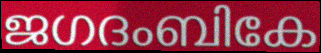
ജഗദംബികേ